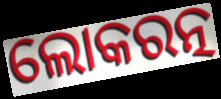
ଲୋକରତ୍ନ